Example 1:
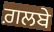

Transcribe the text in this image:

ਗ਼ਲਬੇ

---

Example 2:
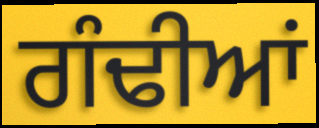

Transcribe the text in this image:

ਗੰਢੀਆਂ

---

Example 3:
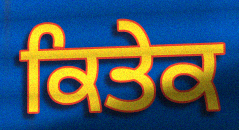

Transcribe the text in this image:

ਕਿਤੇਕ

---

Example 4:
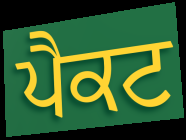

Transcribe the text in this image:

ਪੈਕਟ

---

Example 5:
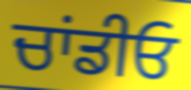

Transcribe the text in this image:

ਚਾਂਡੀਓ